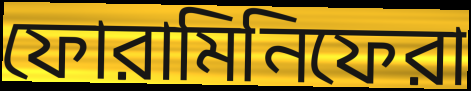
ফোরামিনিফেরা